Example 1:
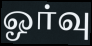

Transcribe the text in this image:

ஓர்வு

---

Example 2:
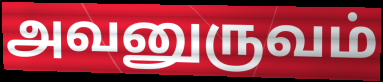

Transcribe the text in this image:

அவனுருவம்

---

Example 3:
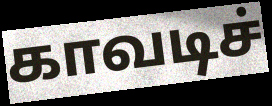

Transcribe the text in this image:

காவடிச்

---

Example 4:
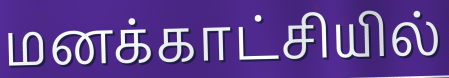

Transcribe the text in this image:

மனக்காட்சியில்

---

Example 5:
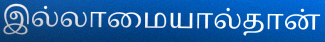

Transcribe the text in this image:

இல்லாமையால்தான்